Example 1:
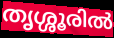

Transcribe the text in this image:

തൃശ്ശൂരിൽ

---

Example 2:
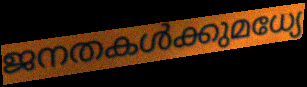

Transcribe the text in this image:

ജനതകൾക്കുമധ്യേ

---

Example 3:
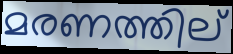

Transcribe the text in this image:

മരണത്തില്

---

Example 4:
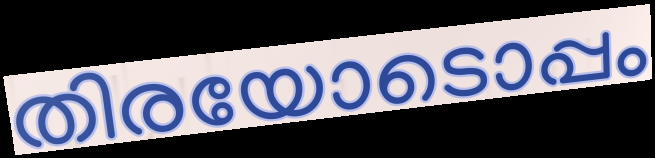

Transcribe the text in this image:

തിരയോടൊപ്പം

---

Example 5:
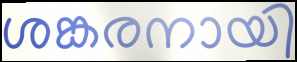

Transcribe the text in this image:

ശങ്കരനായി